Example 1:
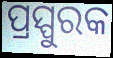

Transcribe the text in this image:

ପ୍ରସ୍ପୁରକ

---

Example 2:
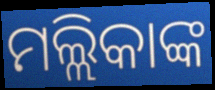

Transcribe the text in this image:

ମଲ୍ଲିକାଙ୍କ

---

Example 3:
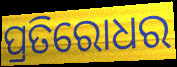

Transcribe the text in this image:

ପ୍ରତିରୋଧର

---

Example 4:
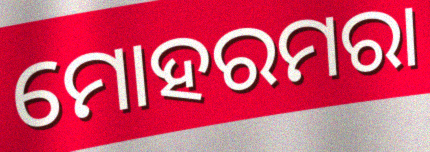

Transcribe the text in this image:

ମୋହରମରା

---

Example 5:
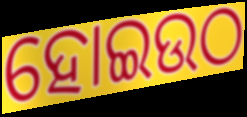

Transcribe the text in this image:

ହୋଇଉଠ